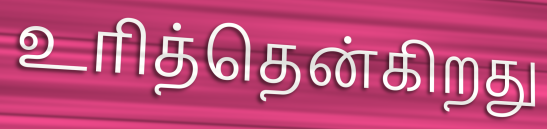
உரித்தென்கிறது